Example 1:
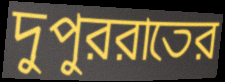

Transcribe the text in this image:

দুপুররাতের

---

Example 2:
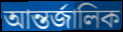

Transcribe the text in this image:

আন্তর্জালিক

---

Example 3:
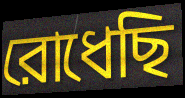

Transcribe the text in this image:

রোধেছি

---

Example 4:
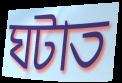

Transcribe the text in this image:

ঘটাত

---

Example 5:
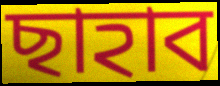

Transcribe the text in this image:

ছাহাব